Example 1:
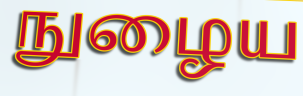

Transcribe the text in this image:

நுழைய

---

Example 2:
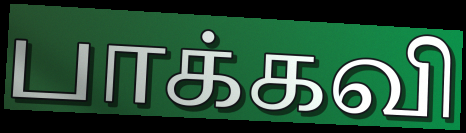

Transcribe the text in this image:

பாக்கவி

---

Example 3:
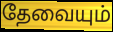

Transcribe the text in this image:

தேவையும்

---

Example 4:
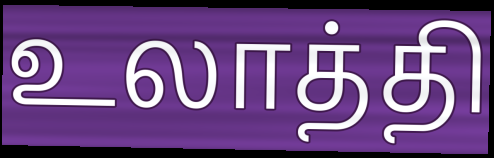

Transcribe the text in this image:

உலாத்தி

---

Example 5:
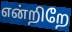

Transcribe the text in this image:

என்றிறே